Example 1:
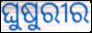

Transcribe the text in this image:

ଘୁଷୁରୀର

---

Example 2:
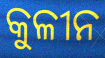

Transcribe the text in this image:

କୁଳୀନ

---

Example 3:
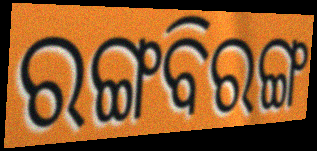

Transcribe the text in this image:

ରଙ୍ଗବିରଙ୍ଗ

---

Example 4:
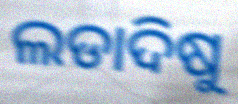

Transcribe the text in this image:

ଲଡାଦିଷୁ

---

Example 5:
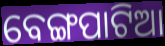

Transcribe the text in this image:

ବେଙ୍ଗପାଟିଆ